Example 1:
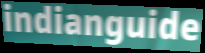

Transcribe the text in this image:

indianguide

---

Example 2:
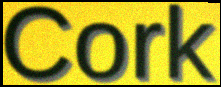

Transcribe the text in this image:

Cork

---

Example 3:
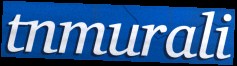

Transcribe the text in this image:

tnmurali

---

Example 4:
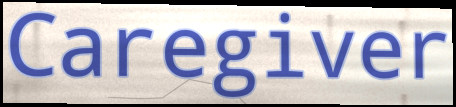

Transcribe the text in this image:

Caregiver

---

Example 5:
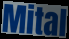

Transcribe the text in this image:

Mital